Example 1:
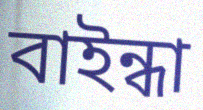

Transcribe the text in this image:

বাইন্ধা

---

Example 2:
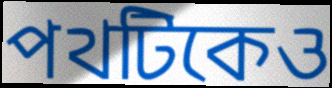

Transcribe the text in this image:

পথটিকেও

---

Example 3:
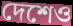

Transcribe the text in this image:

দেশেও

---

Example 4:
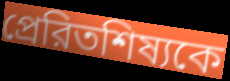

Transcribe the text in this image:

প্রেরিতশিষ্যকে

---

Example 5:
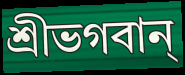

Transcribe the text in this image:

শ্রীভগবান্